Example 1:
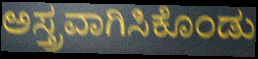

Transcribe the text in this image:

ಅಸ್ತ್ರವಾಗಿಸಿಕೊಂಡು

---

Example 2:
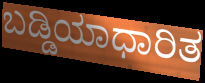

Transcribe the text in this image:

ಬಡ್ಡಿಯಾಧಾರಿತ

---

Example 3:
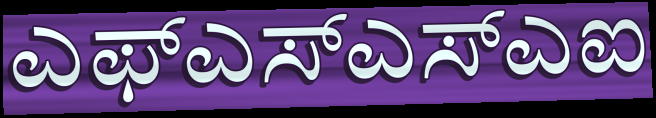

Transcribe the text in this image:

ಎಫ್ಎಸ್ಎಸ್ಎಐ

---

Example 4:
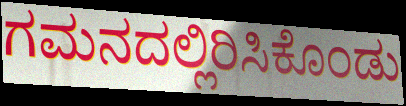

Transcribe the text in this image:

ಗಮನದಲ್ಲಿರಿಸಿಕೊಂಡು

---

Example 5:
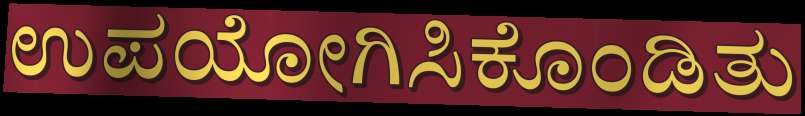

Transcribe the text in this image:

ಉಪಯೋಗಿಸಿಕೊಂಡಿತು